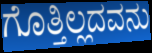
ಗೊತ್ತಿಲ್ಲದವನು